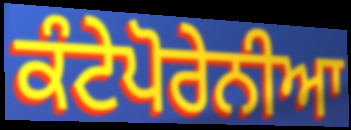
ਕੰਟੇਪੋਰੇਨੀਆ